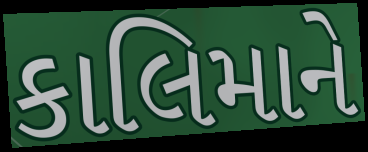
કાલિમાને